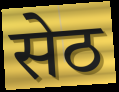
सेठ